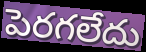
పెరగలేదు